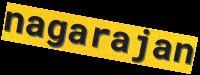
nagarajan